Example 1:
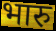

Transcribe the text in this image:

भारु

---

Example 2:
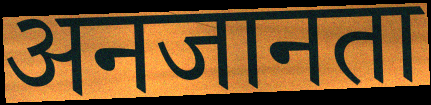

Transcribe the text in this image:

अनजानता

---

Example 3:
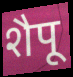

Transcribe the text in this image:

शैपू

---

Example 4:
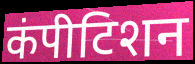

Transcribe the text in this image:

कंपीटिशन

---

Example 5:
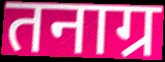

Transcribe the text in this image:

तनाग्र